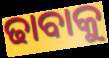
ଢାବାକୁ